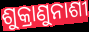
ଶୁକ୍ରାଣୁନାଶୀ